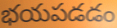
భయపడడం